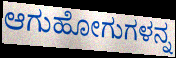
ಆಗುಹೋಗುಗಳನ್ನ